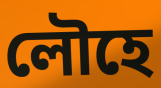
লৌহে